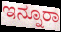
ಇನ್ನೂರಾ